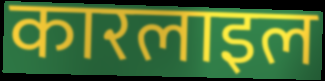
कारलाइल